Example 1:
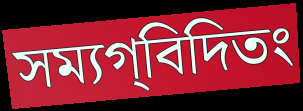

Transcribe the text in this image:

সম্যগ্‌বিদিতং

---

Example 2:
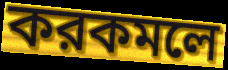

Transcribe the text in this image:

করকমলে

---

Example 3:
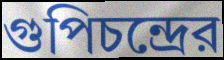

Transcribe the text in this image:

গুপিচন্দ্রের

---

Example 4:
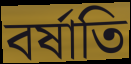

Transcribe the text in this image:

বর্ষাতি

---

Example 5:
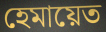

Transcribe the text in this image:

হেমায়েত